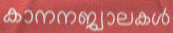
കാനനജ്വാലകൾ